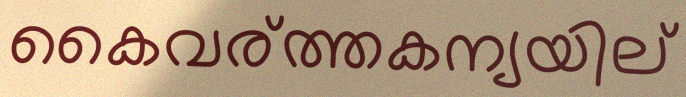
കൈവര്ത്തകന്യയില്